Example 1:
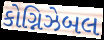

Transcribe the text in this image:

કોગ્નિઝેબલ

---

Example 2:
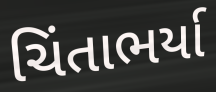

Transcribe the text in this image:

ચિંતાભર્યા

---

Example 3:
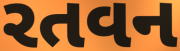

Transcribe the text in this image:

રતવન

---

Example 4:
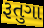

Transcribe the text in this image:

રૂતુગા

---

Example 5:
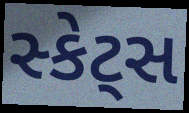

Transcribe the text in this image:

સ્કેટ્સ